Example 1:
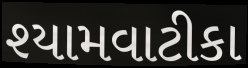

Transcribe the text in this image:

શ્યામવાટીકા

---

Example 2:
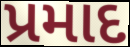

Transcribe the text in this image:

પ્રમાદ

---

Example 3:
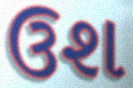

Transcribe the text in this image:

ઉશ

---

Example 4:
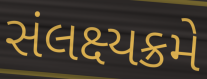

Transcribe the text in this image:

સંલક્ષ્યક્રમે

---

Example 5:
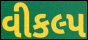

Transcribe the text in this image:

વીકલ્પ